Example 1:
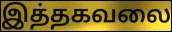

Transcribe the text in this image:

இத்தகவலை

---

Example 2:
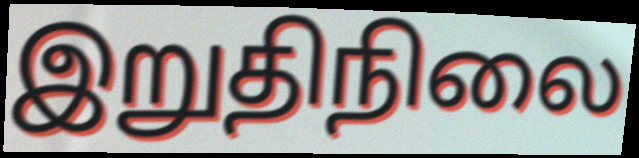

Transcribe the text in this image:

இறுதிநிலை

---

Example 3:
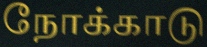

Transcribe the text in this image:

நோக்காடு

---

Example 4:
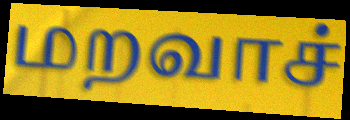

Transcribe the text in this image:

மறவாச்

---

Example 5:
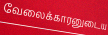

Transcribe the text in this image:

வேலைக்காரனுடைய